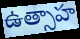
ఉత్సాహ